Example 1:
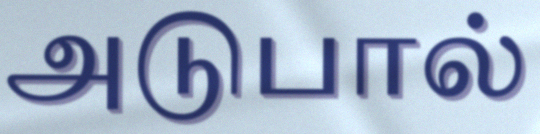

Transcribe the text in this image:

அடுபால்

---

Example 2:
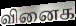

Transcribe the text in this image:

வினைக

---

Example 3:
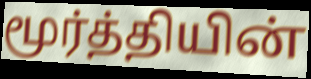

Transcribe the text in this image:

மூர்த்தியின்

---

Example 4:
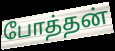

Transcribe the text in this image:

போத்தன்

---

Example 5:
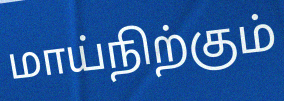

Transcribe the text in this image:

மாய்நிற்கும்